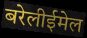
बरेलीईमेल